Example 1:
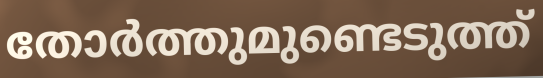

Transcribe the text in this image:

തോർത്തുമുണ്ടെടുത്ത്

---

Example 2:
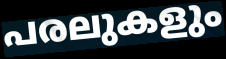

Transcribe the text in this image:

പരലുകളും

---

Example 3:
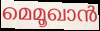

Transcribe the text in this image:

മെമൂഖാൻ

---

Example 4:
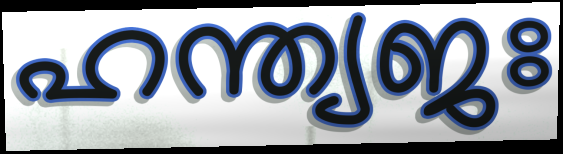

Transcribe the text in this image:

ഹന്ത്യജഃ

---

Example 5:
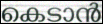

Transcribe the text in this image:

കെടാൻ